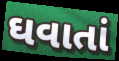
ઘવાતાં